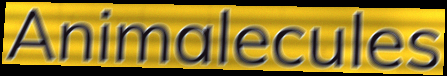
Animalecules